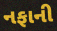
નફાની